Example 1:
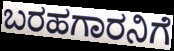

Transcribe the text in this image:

ಬರಹಗಾರನಿಗೆ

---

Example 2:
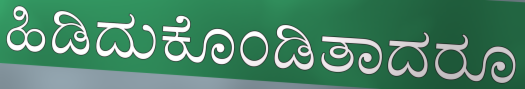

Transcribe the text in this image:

ಹಿಡಿದುಕೊಂಡಿತಾದರೂ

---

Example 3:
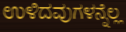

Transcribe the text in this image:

ಉಳಿದವುಗಳನ್ನೆಲ್ಲ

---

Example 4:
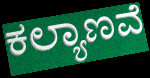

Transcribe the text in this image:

ಕಲ್ಯಾಣವೆ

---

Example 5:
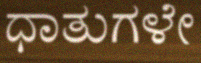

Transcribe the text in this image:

ಧಾತುಗಳೇ